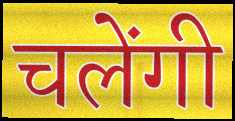
चलेंगी